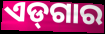
ଏଡ୍‌ଗାର